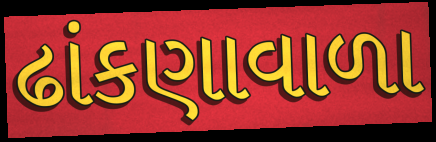
ઢાંકણાવાળા